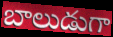
బాలుడుగా